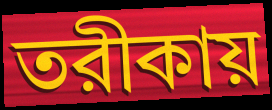
তরীকায়